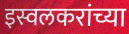
इस्वलकरांच्या